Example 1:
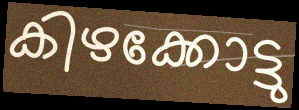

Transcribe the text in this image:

കിഴക്കോട്ടു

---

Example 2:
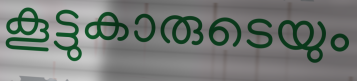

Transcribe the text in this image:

കൂട്ടുകാരുടെയും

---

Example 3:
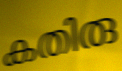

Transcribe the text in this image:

കതിരു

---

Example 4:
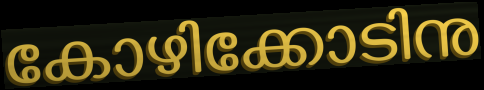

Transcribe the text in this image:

കോഴിക്കോടിനു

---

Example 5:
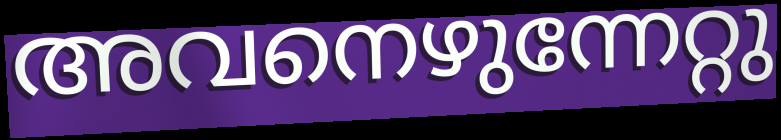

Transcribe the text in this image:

അവനെഴുന്നേറ്റു